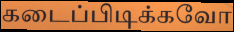
கடைப்பிடிக்கவோ